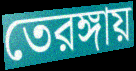
তেরঙ্গায়